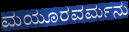
ಮಯೂರವರ್ಮನು